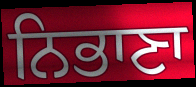
ਨਿਭਾਣਾ